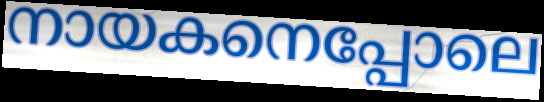
നായകനെപ്പോലെ